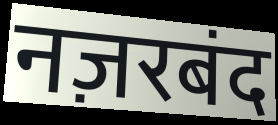
नज़रबंद